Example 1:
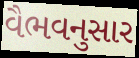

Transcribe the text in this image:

વૈભવનુસાર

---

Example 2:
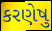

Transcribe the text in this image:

કરણેષુ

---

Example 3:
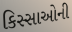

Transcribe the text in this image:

કિસ્સાઓની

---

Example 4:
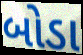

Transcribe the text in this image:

બોડા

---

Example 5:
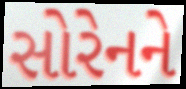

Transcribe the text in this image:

સોરેનને